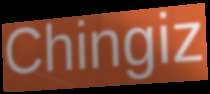
Chingiz